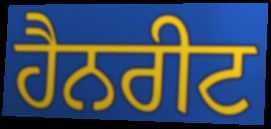
ਹੈਨਰੀਟ